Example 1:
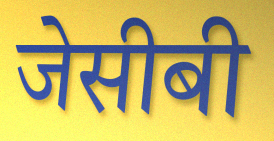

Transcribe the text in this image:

जेसीबी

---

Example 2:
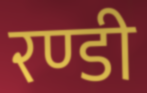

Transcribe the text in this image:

रण्डी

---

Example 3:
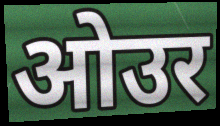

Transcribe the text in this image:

ओउर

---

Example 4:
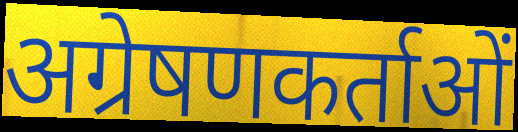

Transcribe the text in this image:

अग्रेषणकर्ताओं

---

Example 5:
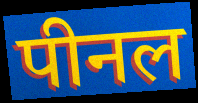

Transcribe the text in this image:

पीनल